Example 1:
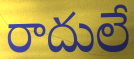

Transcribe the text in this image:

రాదులే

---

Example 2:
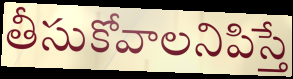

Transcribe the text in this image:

తీసుకోవాలనిపిస్తే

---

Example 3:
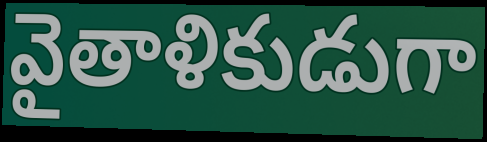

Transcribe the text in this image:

వైతాళికుడుగా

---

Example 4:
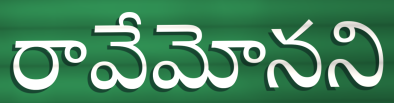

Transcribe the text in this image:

రావేమోనని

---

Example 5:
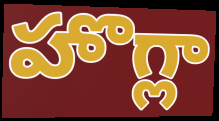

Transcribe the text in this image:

హొగ్లా